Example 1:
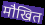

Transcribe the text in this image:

मौखित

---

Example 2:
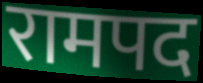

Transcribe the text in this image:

रामपद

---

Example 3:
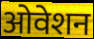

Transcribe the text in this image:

ओवेशन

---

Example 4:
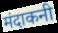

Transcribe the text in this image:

मंदाकनी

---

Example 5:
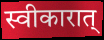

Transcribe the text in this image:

स्वीकारात्